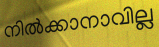
നിൽക്കാനാവില്ല